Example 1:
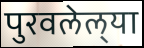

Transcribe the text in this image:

पुरवलेल्या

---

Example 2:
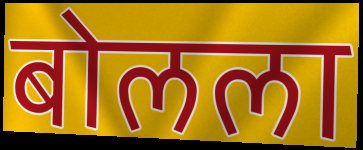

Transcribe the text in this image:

बोलला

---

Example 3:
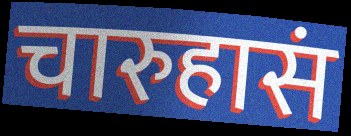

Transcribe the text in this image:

चारुहासं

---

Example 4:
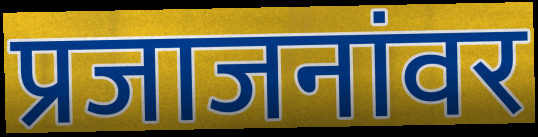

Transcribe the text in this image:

प्रजाजनांवर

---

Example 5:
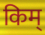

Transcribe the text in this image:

किम्